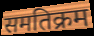
समतिक्रम